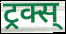
ट्रक्स्